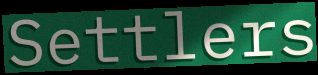
Settlers